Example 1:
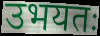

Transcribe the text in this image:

उभयतः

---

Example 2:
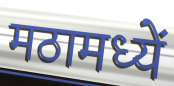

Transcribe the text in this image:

मठामध्यें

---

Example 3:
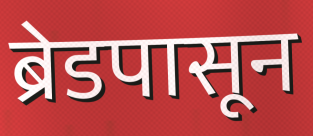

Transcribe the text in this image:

ब्रेडपासून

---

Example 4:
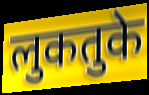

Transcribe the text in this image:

लुकतुके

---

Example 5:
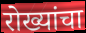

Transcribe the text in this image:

रोख्यांचा